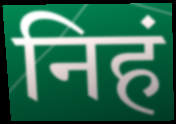
निहं